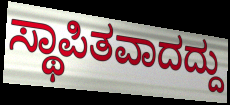
ಸ್ಥಾಪಿತವಾದದ್ದು